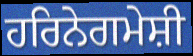
ਹਰਿਨੇਗਮੇਸ਼ੀ